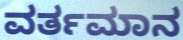
ವರ್ತಮಾನ